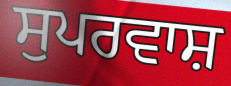
ਸੁਪਰਵਾਸ਼